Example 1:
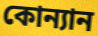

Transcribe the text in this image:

কোন্যান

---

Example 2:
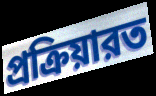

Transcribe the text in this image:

প্রক্রিয়ারত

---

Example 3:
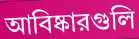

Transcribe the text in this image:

আবিষ্কারগুলি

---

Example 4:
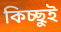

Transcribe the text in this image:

কিচ্ছুই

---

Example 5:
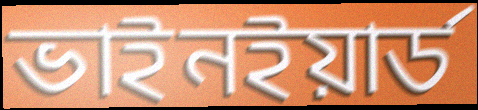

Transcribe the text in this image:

ভাইনইয়ার্ড